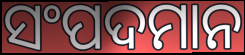
ସଂପଦମାନ